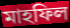
মাহফিল